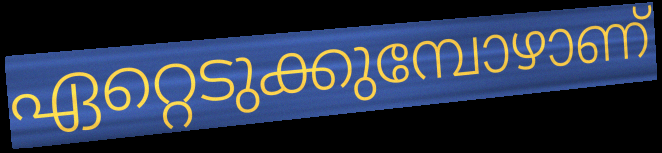
ഏറ്റെടുക്കുമ്പോഴാണ്